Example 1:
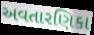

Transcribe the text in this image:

અવતારણિકા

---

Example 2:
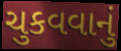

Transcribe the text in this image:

ચુકવવાનું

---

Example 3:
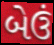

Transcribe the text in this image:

બેઉં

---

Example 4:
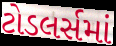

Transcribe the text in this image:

ટોડલર્સમાં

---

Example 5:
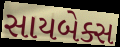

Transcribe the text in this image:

સાયબેક્સ